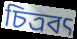
চিত্ৰবৎ